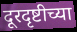
दूरदृष्टीच्या